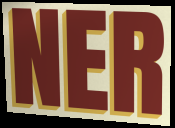
NER